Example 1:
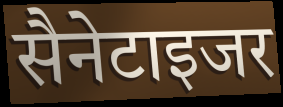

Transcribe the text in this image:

सैनेटाइजर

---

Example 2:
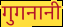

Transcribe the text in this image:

गुगनानी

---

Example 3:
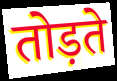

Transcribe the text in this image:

तोड़ते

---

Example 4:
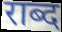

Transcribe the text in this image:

राब्द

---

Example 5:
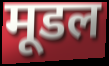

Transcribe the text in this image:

मूडल